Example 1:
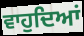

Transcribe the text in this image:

ਵਾਹੁਦਿਆਂ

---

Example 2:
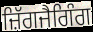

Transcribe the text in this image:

ਜ਼ਿੱਗਜੈਗਿੰਗ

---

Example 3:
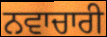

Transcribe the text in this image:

ਨਵਾਚਾਰੀ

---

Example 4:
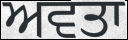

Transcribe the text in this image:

ਅਵਤਾ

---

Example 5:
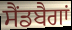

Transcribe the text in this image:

ਸੈਂਡਬੈਗਾਂ